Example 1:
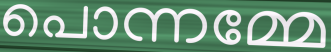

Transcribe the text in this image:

പൊന്നമ്മേ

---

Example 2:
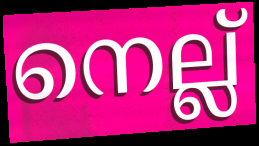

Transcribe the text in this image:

നെല്ല്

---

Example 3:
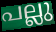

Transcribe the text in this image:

പല്ലു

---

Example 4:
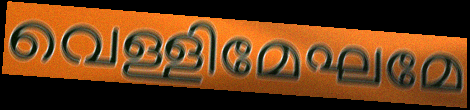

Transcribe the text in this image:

വെള്ളിമേഘമേ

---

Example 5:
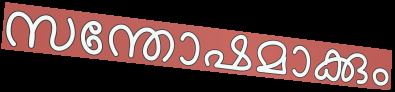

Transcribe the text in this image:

സന്തോഷമാക്കും